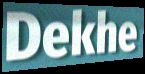
Dekhe